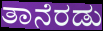
ತಾನೆರಡು